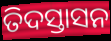
ତିଦସ୍ତାସନ